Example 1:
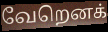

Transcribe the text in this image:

வேறெனக்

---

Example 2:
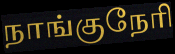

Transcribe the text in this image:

நாங்குநேரி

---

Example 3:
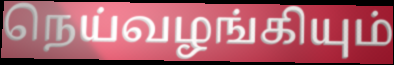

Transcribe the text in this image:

நெய்வழங்கியும்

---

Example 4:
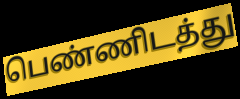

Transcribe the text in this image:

பெண்ணிடத்து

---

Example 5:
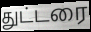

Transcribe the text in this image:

துட்டரை